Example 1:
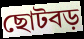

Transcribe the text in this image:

ছোটবড়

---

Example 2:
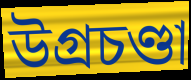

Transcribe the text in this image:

উগ্রচণ্ডা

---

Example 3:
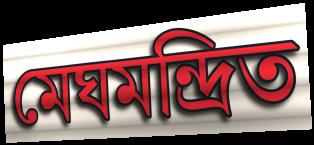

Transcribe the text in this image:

মেঘমন্দ্রিত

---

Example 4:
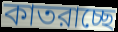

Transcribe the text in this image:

কাতরাচ্ছে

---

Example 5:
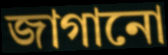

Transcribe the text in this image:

জাগানো